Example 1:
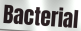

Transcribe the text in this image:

Bacterial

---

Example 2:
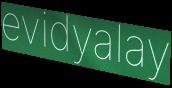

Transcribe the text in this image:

evidyalay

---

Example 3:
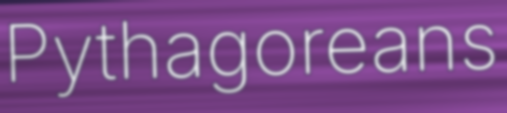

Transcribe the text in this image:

Pythagoreans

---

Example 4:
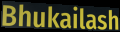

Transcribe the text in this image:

Bhukailash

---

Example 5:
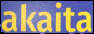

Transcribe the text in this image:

akaita